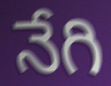
నేగి